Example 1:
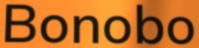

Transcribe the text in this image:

Bonobo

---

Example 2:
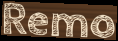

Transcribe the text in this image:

Remo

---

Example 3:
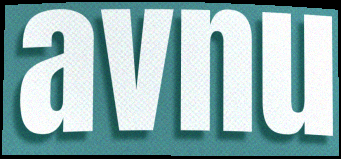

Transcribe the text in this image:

avnu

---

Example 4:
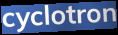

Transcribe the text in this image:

cyclotron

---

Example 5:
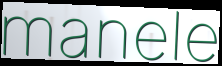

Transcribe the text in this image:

manele